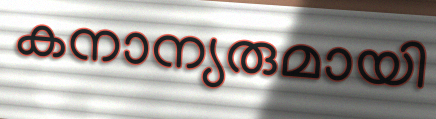
കനാന്യരുമായി